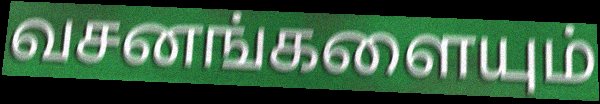
வசனங்களையும்